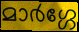
മാർഗ്ഗേ